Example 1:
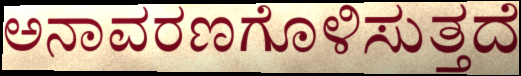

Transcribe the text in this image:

ಅನಾವರಣಗೊಳಿಸುತ್ತದೆ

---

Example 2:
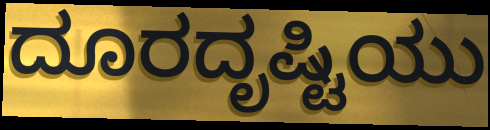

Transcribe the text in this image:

ದೂರದೃಷ್ಟಿಯು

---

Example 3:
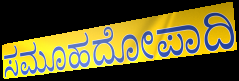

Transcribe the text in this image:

ಸಮೂಹದೋಪಾದಿ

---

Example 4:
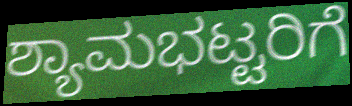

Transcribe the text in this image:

ಶ್ಯಾಮಭಟ್ಟರಿಗೆ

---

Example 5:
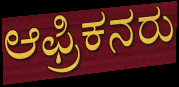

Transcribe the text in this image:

ಆಫ್ರಿಕನರು